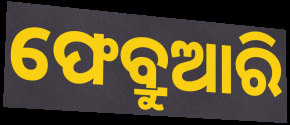
ଫେବ୍ରୁଆରି